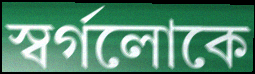
স্বর্গলোকে